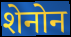
शेनोन